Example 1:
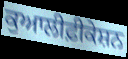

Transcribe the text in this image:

ਕੁਆਲੀਫ਼ੀਕੇਸ਼ਨ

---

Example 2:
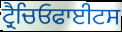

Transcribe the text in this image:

ਟ੍ਰੈਚਿਓਫਾਈਟਸ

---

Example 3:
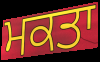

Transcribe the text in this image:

ਮਕਤਾ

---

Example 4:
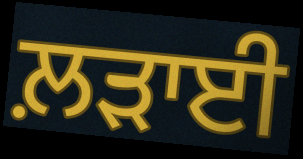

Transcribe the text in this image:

ਲ਼ੜਾਈ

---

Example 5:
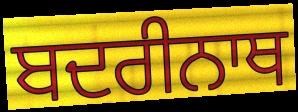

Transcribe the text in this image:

ਬਦਰੀਨਾਥ